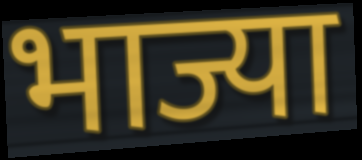
भाज्या